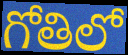
గోతిలో